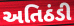
અતિઠંડી